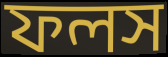
ফলস